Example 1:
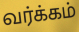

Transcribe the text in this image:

வர்க்கம்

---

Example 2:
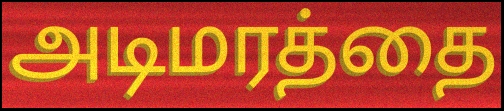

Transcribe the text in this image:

அடிமரத்தை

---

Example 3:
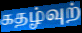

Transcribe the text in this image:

கதழ்வுற்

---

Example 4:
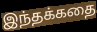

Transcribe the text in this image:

இந்தக்கதை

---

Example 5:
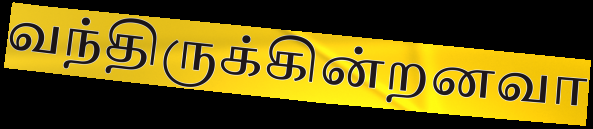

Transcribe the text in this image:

வந்திருக்கின்றனவா